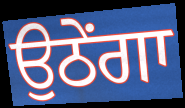
ਉਠੇਂਗਾ